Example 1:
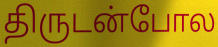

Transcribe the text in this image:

திருடன்போல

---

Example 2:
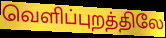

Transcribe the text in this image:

வெளிப்புறத்திலே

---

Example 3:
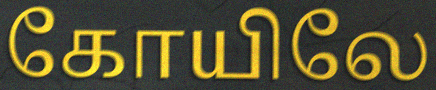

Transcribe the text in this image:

கோயிலே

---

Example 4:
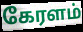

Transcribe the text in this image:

கேரளம்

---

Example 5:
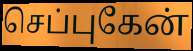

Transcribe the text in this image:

செப்புகேன்